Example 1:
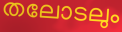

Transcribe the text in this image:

തലോടലും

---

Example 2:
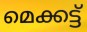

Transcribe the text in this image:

മെക്കട്ട്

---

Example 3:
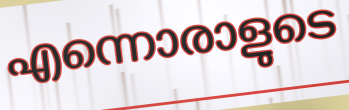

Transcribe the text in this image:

എന്നൊരാളുടെ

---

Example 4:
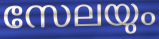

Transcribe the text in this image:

സേലയും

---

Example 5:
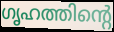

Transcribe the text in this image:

ഗൃഹത്തിന്റെ